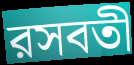
রসবতী